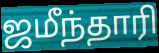
ஜமீந்தாரி